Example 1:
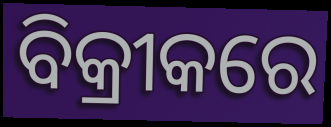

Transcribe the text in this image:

ବିକ୍ରୀକରେ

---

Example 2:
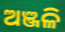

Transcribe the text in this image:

ଅଞ୍ଜଳି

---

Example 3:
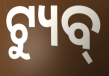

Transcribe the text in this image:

ଟ୍ୟୁବ୍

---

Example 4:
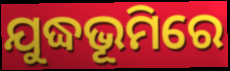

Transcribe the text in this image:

ଯୁଦ୍ଧଭୂମିରେ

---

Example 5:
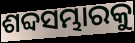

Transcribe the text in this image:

ଶବ୍ଦସମ୍ଭାରକୁ